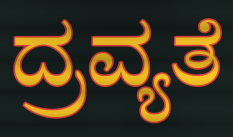
ದ್ರವ್ಯತೆ